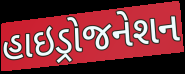
હાઇડ્રોજનેશન